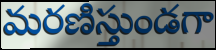
మరణిస్తుండగా